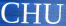
CHU